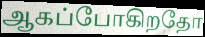
ஆகப்போகிறதோ